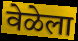
वेळेला